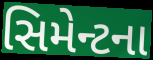
સિમેન્ટના